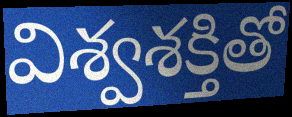
విశ్వశక్తితో